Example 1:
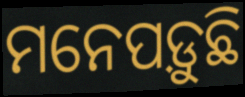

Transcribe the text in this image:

ମନେପଡ଼ୁଛି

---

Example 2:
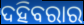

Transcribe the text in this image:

ଦହିବରାର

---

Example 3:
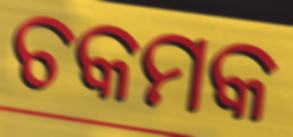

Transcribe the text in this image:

ଚକମକ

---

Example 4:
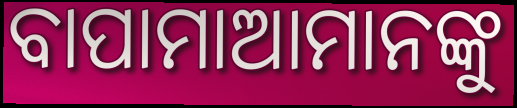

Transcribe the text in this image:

ବାପାମାଆମାନଙ୍କୁ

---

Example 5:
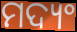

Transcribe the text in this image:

ମଦ୍ୟଂ